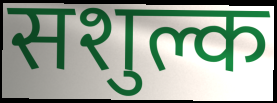
सशुल्क